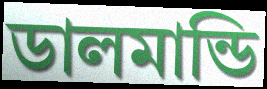
ডালমান্ডি